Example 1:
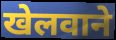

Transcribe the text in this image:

खेलवाने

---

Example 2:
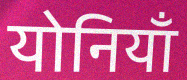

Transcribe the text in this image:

योनियाँ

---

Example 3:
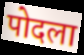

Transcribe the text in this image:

पोदला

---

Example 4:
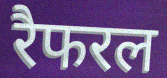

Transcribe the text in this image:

रैफरल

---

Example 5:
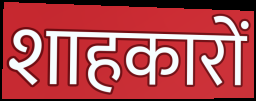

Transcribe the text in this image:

शाहकारों